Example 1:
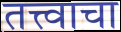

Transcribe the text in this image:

तत्त्वाचा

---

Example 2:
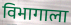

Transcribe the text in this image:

विभागाला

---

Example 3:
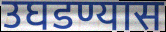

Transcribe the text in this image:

उघडण्यास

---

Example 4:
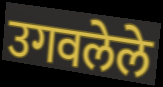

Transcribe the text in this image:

उगवलेले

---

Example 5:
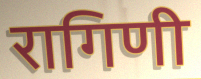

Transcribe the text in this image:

रागिणी